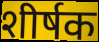
शीर्षक